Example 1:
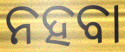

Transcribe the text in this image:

ନହବା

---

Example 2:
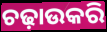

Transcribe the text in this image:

ଚଢ଼ାଉକରି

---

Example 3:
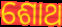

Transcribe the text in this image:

ଶୋଥ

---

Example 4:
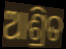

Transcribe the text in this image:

ଆଶ୍ରିତ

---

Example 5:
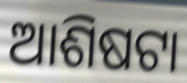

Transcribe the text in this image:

ଆଶିଷଟା